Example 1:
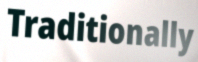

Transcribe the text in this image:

Traditionally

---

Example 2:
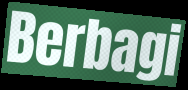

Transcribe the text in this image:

Berbagi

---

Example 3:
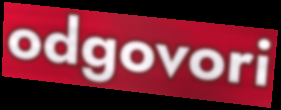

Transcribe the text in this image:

odgovori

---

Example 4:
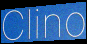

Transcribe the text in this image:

Clino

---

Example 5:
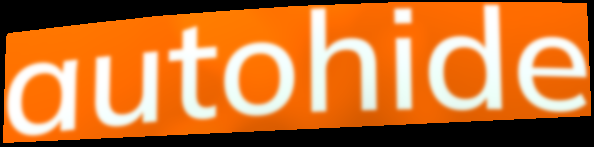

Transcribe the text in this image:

autohide